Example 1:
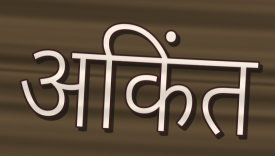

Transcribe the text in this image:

अकिंत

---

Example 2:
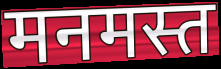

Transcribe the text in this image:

मनमस्त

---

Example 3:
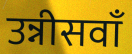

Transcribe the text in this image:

उन्नीसवाँ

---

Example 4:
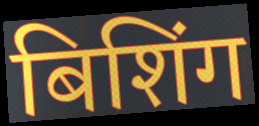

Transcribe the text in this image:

बिशिंग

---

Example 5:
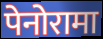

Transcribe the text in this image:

पेनोरामा